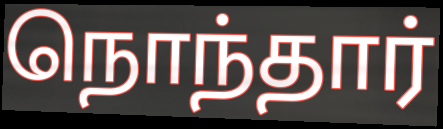
நொந்தார்